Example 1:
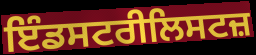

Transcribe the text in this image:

ਇੰਡਸਟਰੀਲਿਸਟਜ਼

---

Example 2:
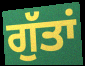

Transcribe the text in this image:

ਗੁੱਤਾਂ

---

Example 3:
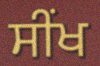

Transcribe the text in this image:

ਸੀਂਖ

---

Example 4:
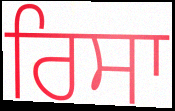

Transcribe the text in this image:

ਰਿਸਾ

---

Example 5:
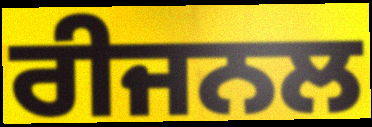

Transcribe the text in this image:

ਰੀਜਨਲ